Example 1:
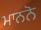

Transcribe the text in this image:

ਮਾਨਨੋ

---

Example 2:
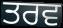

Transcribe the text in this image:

ਤਰਵ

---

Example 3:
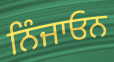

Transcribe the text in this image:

ਨਿੰਜਾਓਨ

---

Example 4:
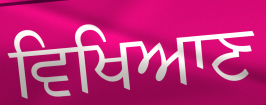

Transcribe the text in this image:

ਵਿਖਿਆਣ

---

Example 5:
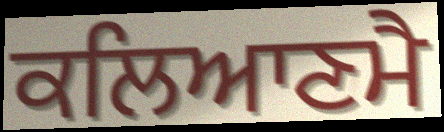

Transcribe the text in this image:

ਕਲਿਆਣਮੈ